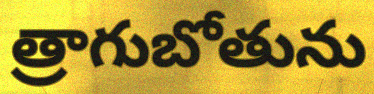
త్రాగుబోతును